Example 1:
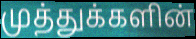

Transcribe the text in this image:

முத்துக்களின்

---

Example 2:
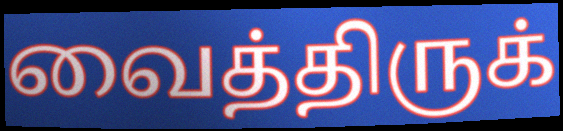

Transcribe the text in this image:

வைத்திருக்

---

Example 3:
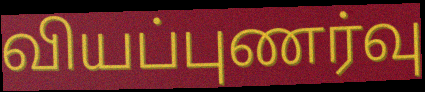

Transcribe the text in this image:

வியப்புணர்வு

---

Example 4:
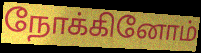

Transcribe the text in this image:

நோக்கினோம்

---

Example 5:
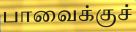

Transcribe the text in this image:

பாவைக்குச்